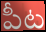
పీట